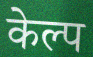
केल्प